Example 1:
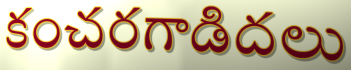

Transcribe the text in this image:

కంచరగాడిదలు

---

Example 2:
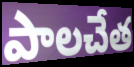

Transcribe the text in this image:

పాలచేత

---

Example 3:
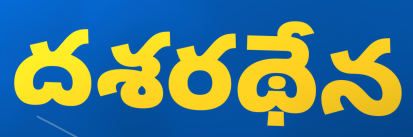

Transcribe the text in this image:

దశరథేన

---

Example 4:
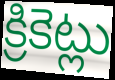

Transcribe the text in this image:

క్రికెట్లు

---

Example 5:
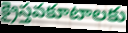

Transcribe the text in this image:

క్రైస్తవకూటాలకు